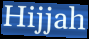
Hijjah